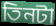
তিনটা